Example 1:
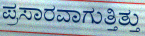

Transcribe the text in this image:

ಪ್ರಸಾರವಾಗುತ್ತಿತ್ತು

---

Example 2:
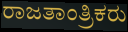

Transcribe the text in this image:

ರಾಜತಾಂತ್ರಿಕರು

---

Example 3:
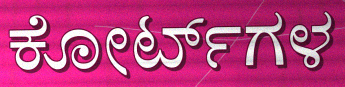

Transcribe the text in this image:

ಕೋರ್ಟ್‌ಗಳ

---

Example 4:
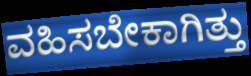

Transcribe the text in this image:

ವಹಿಸಬೇಕಾಗಿತ್ತು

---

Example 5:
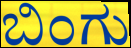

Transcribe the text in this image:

ಬಿಂಗು